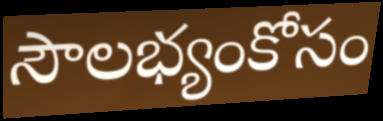
సౌలభ్యంకోసం